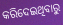
କରିଦେଇଥିବାରୁ